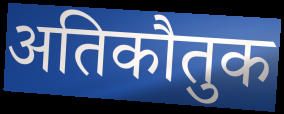
अतिकौतुक